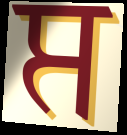
प्त